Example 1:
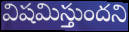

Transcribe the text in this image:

విషమిస్తుందని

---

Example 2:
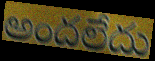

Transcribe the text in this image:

అందలేదు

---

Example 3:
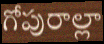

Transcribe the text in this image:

గోపురాల్లా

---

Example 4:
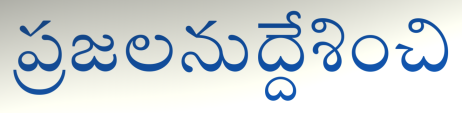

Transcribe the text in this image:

ప్రజలనుద్దేశించి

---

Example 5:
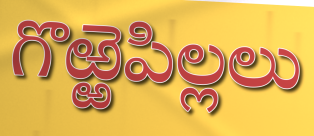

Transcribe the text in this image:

గొఱ్ఱెపిల్లలు